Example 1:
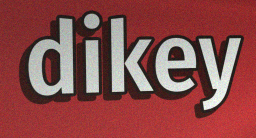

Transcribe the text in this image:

dikey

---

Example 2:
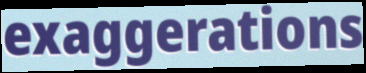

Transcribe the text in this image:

exaggerations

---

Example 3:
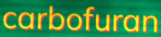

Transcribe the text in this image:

carbofuran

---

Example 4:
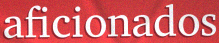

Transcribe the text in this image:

aficionados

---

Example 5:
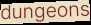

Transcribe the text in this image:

dungeons